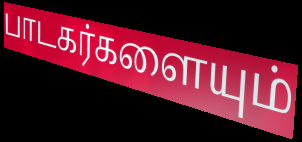
பாடகர்களையும்